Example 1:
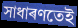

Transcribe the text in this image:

সাধাৰণতেই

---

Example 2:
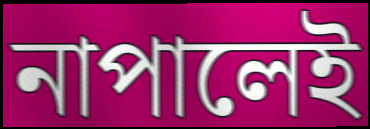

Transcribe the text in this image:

নাপালেই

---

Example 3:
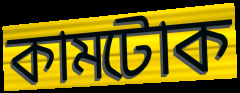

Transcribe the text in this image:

কামটোক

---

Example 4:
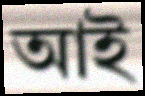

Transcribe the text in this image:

আই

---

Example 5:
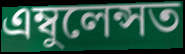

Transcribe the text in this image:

এম্বুলেন্সত